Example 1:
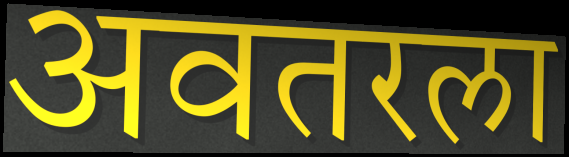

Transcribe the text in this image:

अवतरला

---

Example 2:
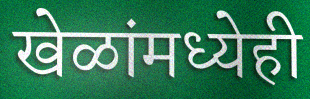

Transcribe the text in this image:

खेळांमध्येही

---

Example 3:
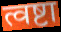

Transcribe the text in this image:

त्वष्टा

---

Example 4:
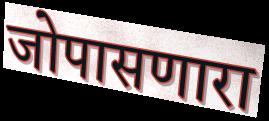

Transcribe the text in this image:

जोपासणारा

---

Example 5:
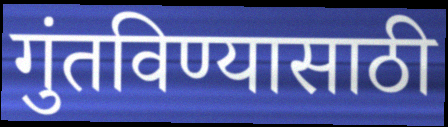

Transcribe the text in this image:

गुंतविण्यासाठी